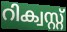
റിക്വസ്റ്റ്